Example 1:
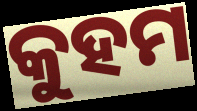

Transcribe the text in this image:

କୁହମ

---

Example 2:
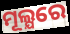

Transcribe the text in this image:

ମୂଲ୍ଯରେ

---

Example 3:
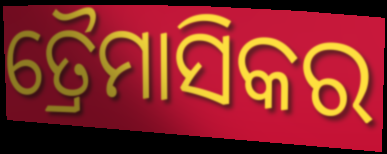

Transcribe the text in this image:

ତ୍ରୈମାସିକର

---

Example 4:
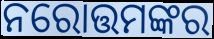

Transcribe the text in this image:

ନରୋତ୍ତମଙ୍କର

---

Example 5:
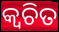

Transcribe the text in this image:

କ୍ୱଚିତ